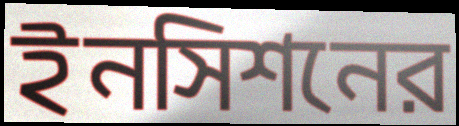
ইনসিশনের